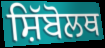
ਸ਼ਿੱਬੋਲਥ